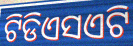
ଟିଡିଏସଏଟି